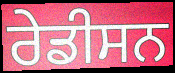
ਰੇਡੀਸਨ